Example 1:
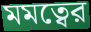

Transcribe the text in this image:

মমত্বের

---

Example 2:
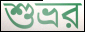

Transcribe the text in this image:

শুভ্রর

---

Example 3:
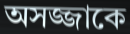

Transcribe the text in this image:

অসজ্জাকে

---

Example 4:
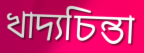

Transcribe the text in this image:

খাদ্যচিন্তা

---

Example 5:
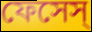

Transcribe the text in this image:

ফেসেস্